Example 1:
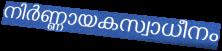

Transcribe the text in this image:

നിർണ്ണായകസ്വാധീനം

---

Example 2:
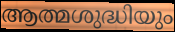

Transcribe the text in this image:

ആത്മശുദ്ധിയും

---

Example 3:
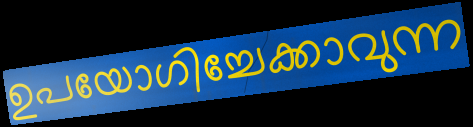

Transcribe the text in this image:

ഉപയോഗിച്ചേക്കാവുന്ന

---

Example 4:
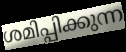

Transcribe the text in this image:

ശമിപ്പിക്കുന്ന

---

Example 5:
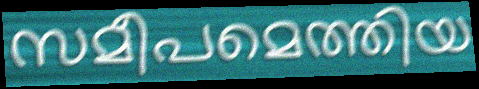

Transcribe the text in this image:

സമീപമെത്തിയ